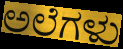
ಅಲೆಗಳು